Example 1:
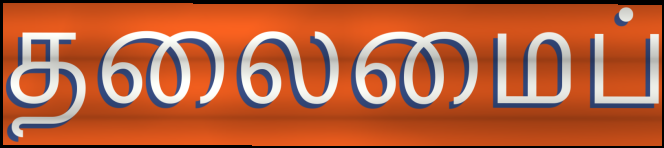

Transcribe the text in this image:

தலைமைப்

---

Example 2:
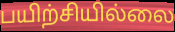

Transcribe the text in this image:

பயிற்சியில்லை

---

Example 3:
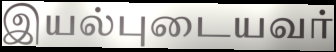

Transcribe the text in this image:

இயல்புடையவர்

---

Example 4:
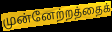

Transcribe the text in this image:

முன்னேற்றத்தைக்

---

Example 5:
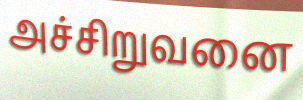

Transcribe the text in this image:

அச்சிறுவனை